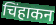
चिंहाकन